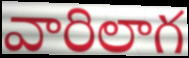
వారిలాగ